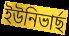
ইউনিভাৰ্ছ